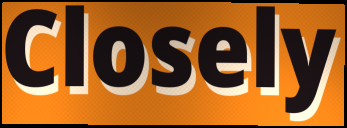
Closely